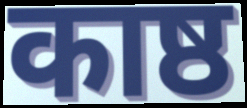
काष्ठ